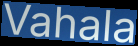
Vahala